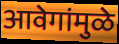
आवेगांमुळे